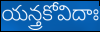
యన్త్రకోవిదాః